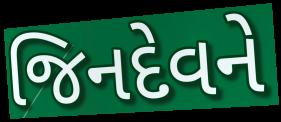
જિનદેવને